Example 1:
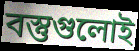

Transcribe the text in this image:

বস্তুগুলোই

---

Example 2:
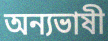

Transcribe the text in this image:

অন্যভাষী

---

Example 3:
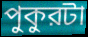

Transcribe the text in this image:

পুকুরটা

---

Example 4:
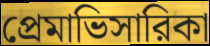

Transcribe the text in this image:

প্রেমাভিসারিকা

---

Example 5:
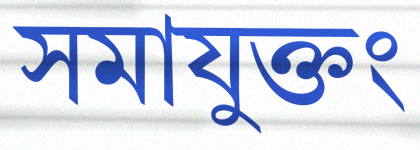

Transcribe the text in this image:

সমাযুক্তং